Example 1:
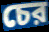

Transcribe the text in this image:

চের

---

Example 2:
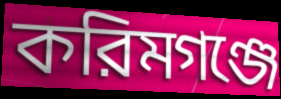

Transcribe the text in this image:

করিমগঞ্জে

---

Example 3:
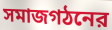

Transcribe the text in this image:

সমাজগঠনের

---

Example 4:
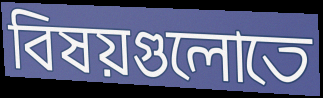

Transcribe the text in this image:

বিষয়গুলোতে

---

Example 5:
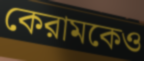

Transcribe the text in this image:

কেরামকেও